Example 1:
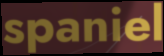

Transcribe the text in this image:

spaniel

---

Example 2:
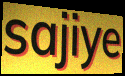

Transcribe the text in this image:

sajiye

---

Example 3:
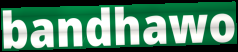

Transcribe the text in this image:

bandhawo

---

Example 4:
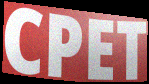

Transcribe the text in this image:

CPET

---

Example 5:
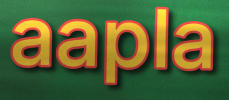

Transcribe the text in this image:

aapla